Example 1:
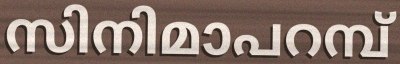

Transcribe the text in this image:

സിനിമാപറമ്പ്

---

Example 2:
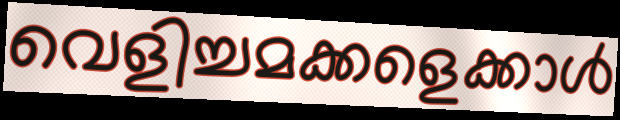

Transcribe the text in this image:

വെളിച്ചമക്കളെക്കാൾ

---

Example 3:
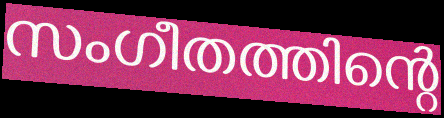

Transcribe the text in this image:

സംഗീതത്തിന്റെ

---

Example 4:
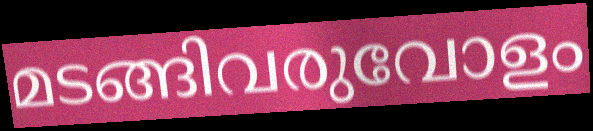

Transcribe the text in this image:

മടങ്ങിവരുവോളം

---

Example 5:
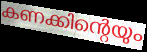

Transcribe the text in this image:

കണക്കിന്റെയും